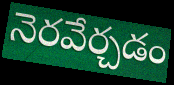
నెరవేర్చడం